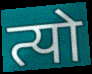
त्यो